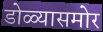
डोळ्यासमोर